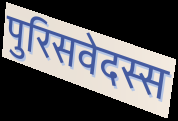
पुरिसवेदस्स